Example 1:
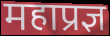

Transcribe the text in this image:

महाप्रज्ञ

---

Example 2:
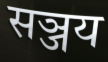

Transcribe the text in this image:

सञ्जय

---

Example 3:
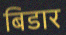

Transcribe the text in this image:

बिडार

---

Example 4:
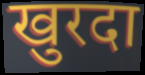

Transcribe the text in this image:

खुरदा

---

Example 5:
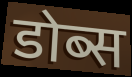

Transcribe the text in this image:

डोब्स